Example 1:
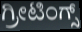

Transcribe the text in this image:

ಗ್ರೀಟಿಂಗ್ಸ್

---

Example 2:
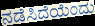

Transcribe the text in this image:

ನಡೆಸಿದೆಯೆಂದು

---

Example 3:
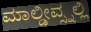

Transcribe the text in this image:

ಮಾಲ್ಡೀವ್ಸ್ನಲ್ಲಿ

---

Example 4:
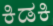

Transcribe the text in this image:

ಕಿಡಕಿ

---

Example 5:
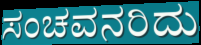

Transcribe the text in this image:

ಸಂಚವನರಿದು